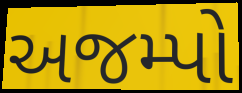
અજમ્પો